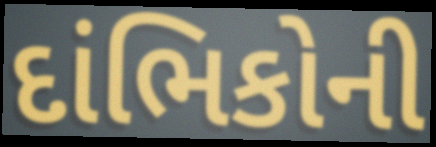
દાંભિકોની